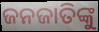
ଜନଜାତିଙ୍କୁ